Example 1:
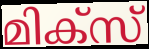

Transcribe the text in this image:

മിക്സ്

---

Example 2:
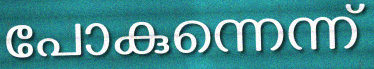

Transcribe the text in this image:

പോകുന്നെന്ന്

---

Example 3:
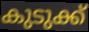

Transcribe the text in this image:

കുടുക്ക്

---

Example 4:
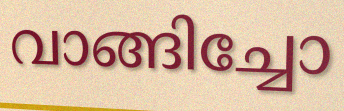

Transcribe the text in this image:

വാങ്ങിച്ചോ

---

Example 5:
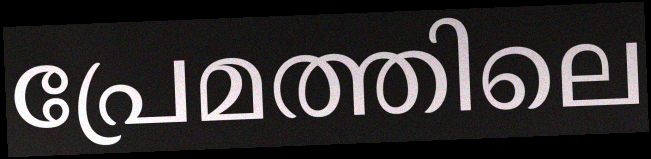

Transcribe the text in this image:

പ്രേമത്തിലെ